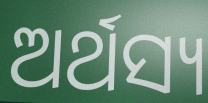
ଅର୍ଥସ୍ୟ